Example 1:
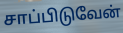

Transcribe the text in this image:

சாப்பிடுவேன்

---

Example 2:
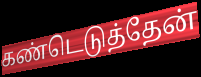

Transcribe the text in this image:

கண்டெடுத்தேன்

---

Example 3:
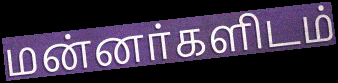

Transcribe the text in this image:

மன்னர்களிடம்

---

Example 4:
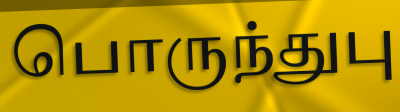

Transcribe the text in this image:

பொருந்துபு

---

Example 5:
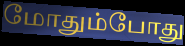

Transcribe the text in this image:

மோதும்போது